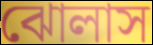
ঝোলাস